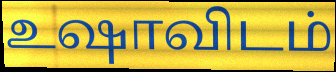
உஷாவிடம்